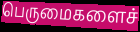
பெருமைகளைச்